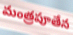
మంత్రపూతేన